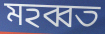
মহব্বত